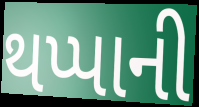
થપ્પાની